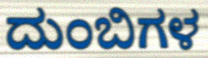
ದುಂಬಿಗಳ